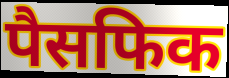
पैसफिक